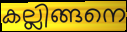
കല്ലിങ്ങനെ